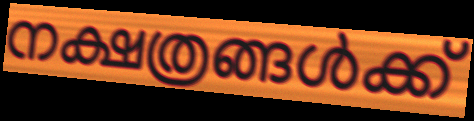
നക്ഷത്രങ്ങൾക്ക്